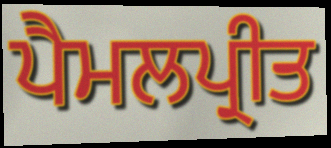
ਪੈਮਲਪ੍ਰੀਤ